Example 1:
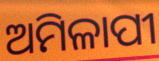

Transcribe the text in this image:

ଅମିଳାପୀ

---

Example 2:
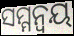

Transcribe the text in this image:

ସମ୍ମନ୍ୱୟ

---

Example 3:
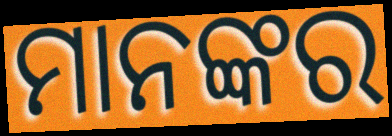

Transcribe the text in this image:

ମାନଙ୍କର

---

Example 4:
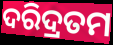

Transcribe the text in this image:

ଦରିଦ୍ରତମ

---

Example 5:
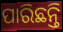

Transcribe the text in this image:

ପାରିଛନ୍ତି